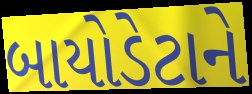
બાયોડેટાને